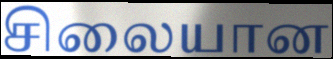
சிலையான